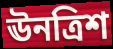
ঊনত্রিশ